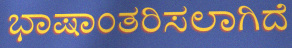
ಭಾಷಾಂತರಿಸಲಾಗಿದೆ